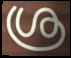
ശ്ര